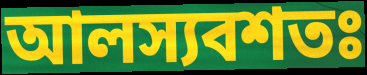
আলস্যবশতঃ